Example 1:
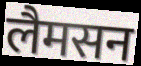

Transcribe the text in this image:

लैमसन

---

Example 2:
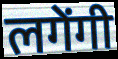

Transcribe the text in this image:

लगेंगी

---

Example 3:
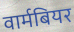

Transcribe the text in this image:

वार्मबियर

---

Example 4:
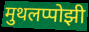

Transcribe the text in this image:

मुथलप्पोझी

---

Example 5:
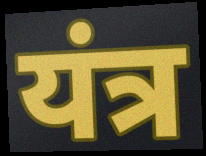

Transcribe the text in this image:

यंत्र